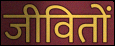
जीवितों